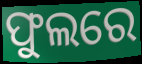
ଫୁଲରେ